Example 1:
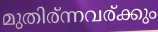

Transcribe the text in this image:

മുതിര്ന്നവര്ക്കും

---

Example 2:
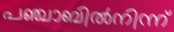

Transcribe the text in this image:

പഞ്ചാബിൽനിന്ന്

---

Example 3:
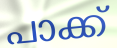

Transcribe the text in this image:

പാക്ക്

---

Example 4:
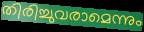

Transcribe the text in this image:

തിരിച്ചുവരാമെന്നും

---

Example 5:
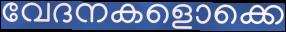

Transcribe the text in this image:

വേദനകളൊക്കെ